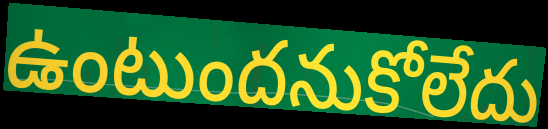
ఉంటుందనుకోలేదు